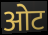
ओट